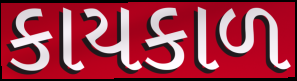
કાયકાળ